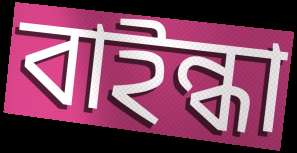
বাইন্ধা